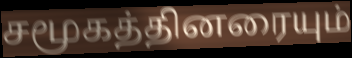
சமூகத்தினரையும்